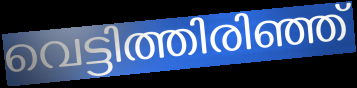
വെട്ടിത്തിരിഞ്ഞ്